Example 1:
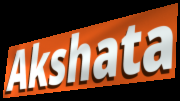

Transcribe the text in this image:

Akshata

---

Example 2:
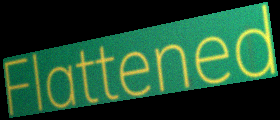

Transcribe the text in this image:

Flattened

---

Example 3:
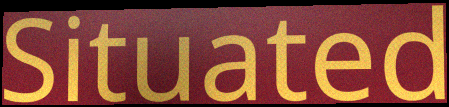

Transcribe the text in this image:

Situated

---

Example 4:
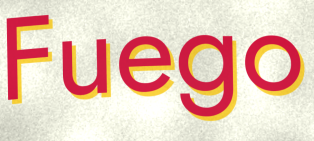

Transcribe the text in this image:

Fuego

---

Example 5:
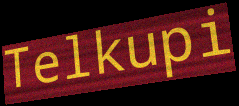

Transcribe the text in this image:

Telkupi